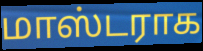
மாஸ்டராக